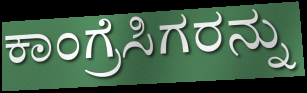
ಕಾಂಗ್ರೆಸಿಗರನ್ನು